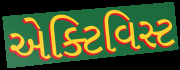
એક્ટિવિસ્ટ